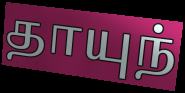
தாயுந்